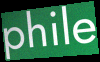
phile